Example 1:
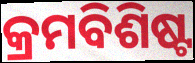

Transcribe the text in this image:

କ୍ରମବିଶିଷ୍ଟ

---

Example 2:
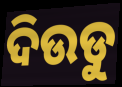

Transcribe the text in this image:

ଦିଉଡୁ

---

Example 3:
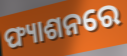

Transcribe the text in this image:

ଫ୍ୟାଶନରେ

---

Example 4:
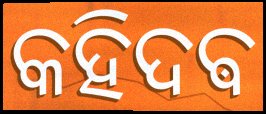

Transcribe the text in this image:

କହିଦଵ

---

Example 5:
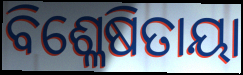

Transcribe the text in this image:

ବିଶ୍ଳେଷିତାୟା